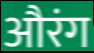
औरंग